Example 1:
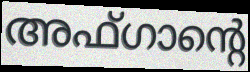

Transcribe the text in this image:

അഫ്ഗാന്റെ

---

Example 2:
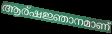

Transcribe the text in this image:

ആര്ഷജ്ഞാനമാണ്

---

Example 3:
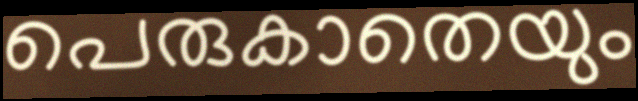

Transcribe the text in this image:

പെരുകാതെയും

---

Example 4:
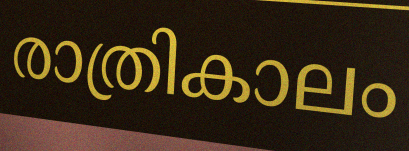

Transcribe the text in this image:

രാത്രികാലം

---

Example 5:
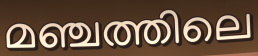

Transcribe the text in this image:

മഞ്ചത്തിലെ